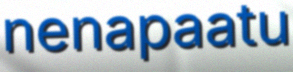
nenapaatu